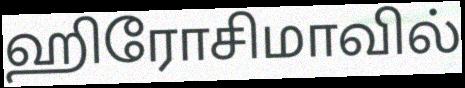
ஹிரோசிமாவில்